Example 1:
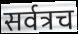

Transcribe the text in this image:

सर्वत्रच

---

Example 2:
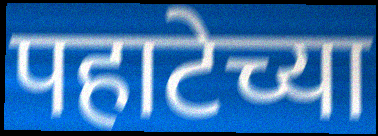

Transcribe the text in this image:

पहाटेच्या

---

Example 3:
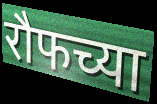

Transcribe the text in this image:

रौफच्या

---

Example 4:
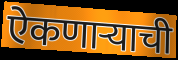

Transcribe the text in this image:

ऐकणार्‍याची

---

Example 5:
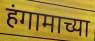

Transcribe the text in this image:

हंगामाच्या